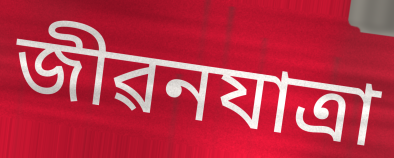
জীৱনযাত্ৰা